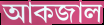
আকজাল